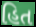
હિત